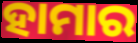
ହାମାର